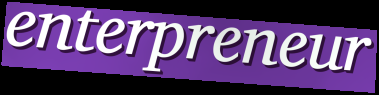
enterpreneur